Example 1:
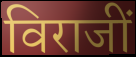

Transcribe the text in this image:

विराजीं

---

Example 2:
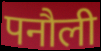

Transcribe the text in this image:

पनौली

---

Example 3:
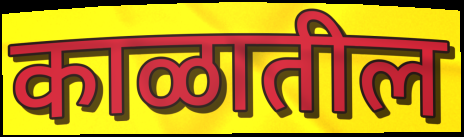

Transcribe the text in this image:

काळातील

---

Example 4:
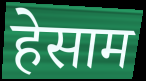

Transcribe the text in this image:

हेसाम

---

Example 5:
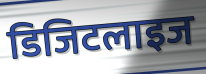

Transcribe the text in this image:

डिजिटलाइज